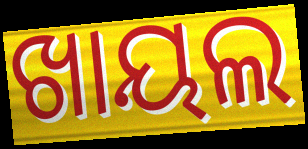
ଖାୟଲ